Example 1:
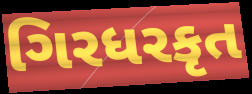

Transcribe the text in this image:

ગિરધરકૃત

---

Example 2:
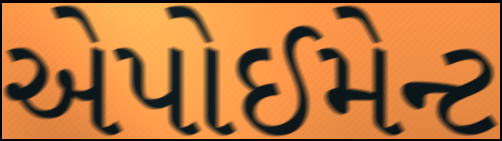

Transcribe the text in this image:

એપોઈમેન્ટ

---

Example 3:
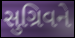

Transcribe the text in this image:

સુગ્રિવને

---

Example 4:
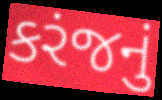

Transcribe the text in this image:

કરંજનું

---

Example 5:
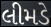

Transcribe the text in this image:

લીમડે